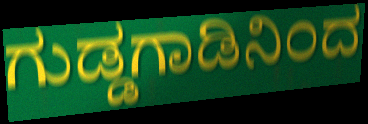
ಗುಡ್ಡಗಾಡಿನಿಂದ